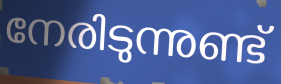
നേരിടുന്നുണ്ട്